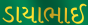
ડાયાભાઈ